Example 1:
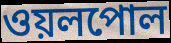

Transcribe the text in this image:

ওয়লপোল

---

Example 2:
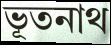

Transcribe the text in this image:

ভূতনাথ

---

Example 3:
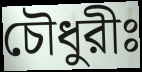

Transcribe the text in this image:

চৌধুরীঃ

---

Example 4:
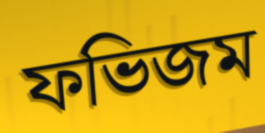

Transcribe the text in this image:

ফভিজম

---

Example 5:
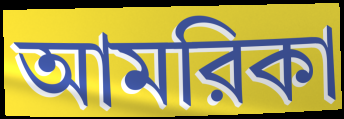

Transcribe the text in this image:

আমরিকা